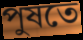
পুষতে